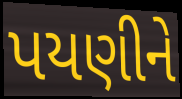
પયણીને